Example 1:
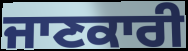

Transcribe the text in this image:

ਜਾਣਕਾਰੀ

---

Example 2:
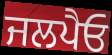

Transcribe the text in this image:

ਜਲਪੈਓ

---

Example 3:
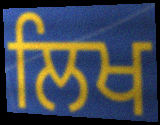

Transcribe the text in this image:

ਲਿਖ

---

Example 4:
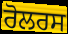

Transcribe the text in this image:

ਰੋਲਰਸ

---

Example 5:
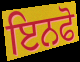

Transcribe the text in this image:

ਇਨਫੋ